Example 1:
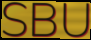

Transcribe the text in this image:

SBU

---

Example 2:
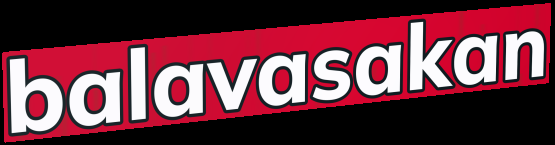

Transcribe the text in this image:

balavasakan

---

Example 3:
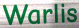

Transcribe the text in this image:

Warlis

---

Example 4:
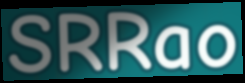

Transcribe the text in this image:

SRRao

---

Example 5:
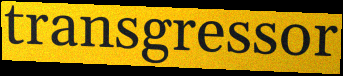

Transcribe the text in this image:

transgressor